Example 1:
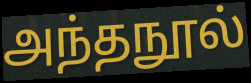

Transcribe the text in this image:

அந்தநூல்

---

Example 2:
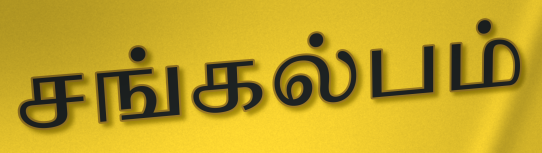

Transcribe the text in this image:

சங்கல்பம்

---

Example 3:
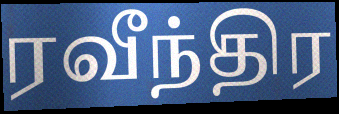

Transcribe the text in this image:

ரவீந்திர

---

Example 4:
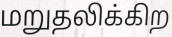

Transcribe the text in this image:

மறுதலிக்கிற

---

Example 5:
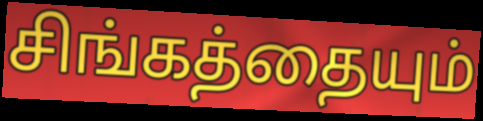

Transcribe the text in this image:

சிங்கத்தையும்